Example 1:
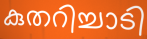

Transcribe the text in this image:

കുതറിച്ചാടി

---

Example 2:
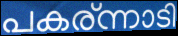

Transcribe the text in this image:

പകര്ന്നാടി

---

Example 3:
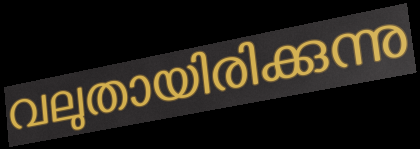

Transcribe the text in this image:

വലുതായിരിക്കുന്നു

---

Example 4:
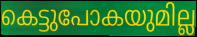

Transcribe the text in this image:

കെട്ടുപോകയുമില്ല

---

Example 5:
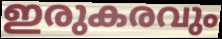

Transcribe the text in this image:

ഇരുകരവും